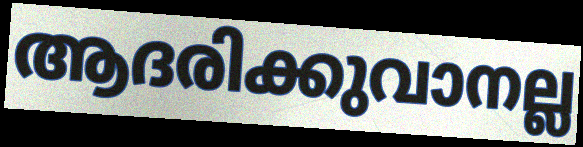
ആദരിക്കുവാനല്ല